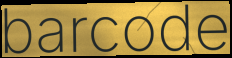
barcode